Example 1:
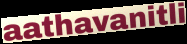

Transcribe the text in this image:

aathavanitli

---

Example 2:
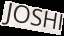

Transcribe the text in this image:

JOSHI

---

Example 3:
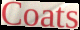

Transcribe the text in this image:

Coats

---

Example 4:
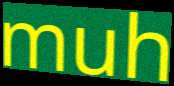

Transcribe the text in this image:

muh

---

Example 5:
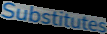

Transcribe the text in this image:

Substitutes